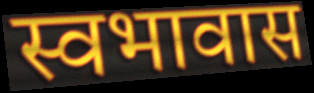
स्वभावास